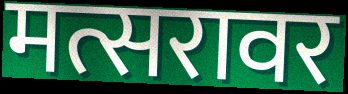
मत्सरावर